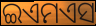
ଇଏମଏସ